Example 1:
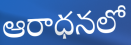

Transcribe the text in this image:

ఆరాధనలో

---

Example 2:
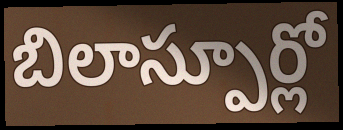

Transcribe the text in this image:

బిలాస్పూర్లో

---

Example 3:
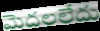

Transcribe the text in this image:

మెదలలేదు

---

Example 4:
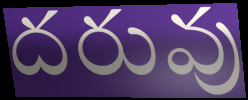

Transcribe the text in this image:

దరువు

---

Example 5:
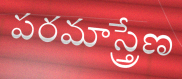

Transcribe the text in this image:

పరమాస్త్రేణ